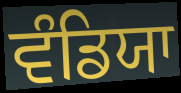
ਵੰਡਿਯਾ